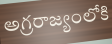
అగ్రరాజ్యంలోకి